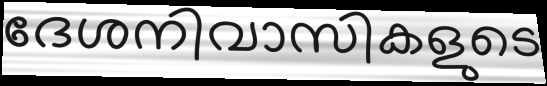
ദേശനിവാസികളുടെ